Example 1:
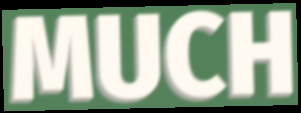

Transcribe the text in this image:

MUCH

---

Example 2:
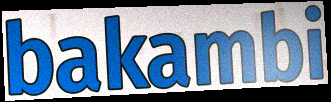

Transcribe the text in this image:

bakambi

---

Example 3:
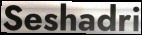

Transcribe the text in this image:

Seshadri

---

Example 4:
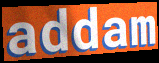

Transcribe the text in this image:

addam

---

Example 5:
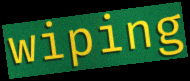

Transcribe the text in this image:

wiping